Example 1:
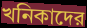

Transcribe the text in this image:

খনিকাদের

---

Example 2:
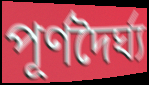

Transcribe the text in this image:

পূর্ণদৈর্ঘ্য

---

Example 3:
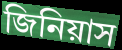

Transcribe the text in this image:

জিনিয়াস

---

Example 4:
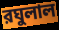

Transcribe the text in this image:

রঘুলাল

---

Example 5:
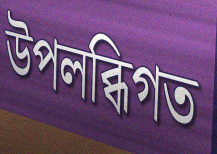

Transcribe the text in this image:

উপলব্ধিগত